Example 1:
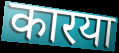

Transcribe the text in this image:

कारया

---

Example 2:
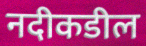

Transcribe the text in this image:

नदीकडील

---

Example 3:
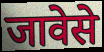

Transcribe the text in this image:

जावेसे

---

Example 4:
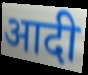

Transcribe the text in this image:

आदी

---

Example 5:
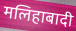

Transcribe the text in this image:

मलिहाबादी